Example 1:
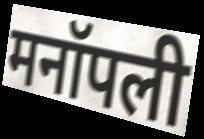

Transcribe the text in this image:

मनॉपली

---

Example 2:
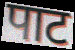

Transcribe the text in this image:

पाट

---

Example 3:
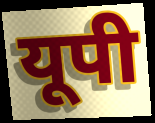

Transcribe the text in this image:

यूपी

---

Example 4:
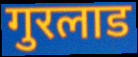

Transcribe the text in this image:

गुरलाड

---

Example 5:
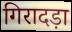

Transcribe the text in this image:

गिरादड़ा